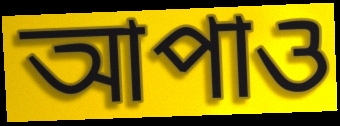
আপাও